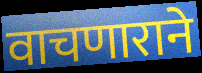
वाचणाराने